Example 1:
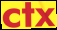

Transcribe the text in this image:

ctx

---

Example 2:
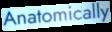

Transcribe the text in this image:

Anatomically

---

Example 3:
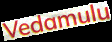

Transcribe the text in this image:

Vedamulu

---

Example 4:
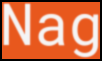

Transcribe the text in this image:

Nag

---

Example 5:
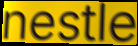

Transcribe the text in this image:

nestle